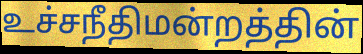
உச்சநீதிமன்றத்தின்